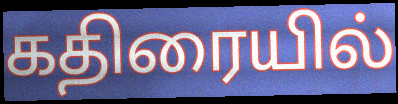
கதிரையில்